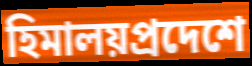
হিমালয়প্রদেশে